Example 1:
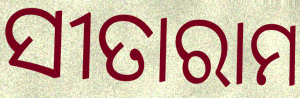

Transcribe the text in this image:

ସୀତାରାମ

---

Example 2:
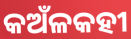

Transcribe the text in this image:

କଅଁଳକହୀ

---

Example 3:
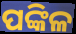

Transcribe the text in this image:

ପଙ୍କିଳ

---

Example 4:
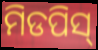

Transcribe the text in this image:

ମିଡପିସ୍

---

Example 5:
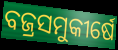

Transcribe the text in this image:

ବଜ୍ରସମୁକୀର୍ଷେ